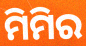
ମିମିର